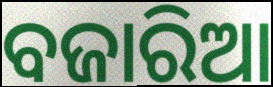
ବଜାରିଆ